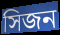
সিজন